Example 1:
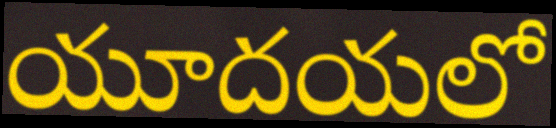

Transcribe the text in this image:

యూదయలో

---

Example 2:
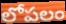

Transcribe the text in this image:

లోపలం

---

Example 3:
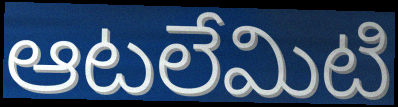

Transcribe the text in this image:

ఆటలేమిటి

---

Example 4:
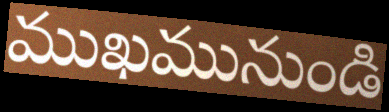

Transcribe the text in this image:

ముఖమునుండి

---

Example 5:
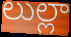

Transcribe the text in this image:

లుల్లా